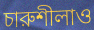
চারুশীলাও